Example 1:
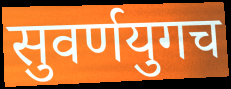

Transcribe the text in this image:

सुवर्णयुगच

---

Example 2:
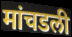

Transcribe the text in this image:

मांचडली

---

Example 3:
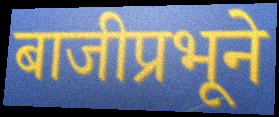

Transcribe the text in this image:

बाजीप्रभूने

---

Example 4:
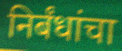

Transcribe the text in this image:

निर्बंधांचा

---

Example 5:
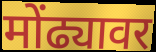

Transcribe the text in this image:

मोंढ्यावर